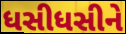
ધસીધસીને